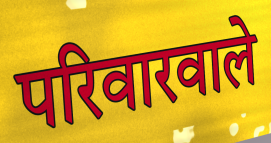
परिवारवाले